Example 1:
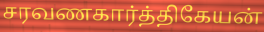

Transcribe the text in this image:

சரவணகார்த்திகேயன்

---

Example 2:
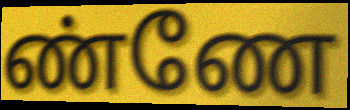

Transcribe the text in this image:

ண்ணே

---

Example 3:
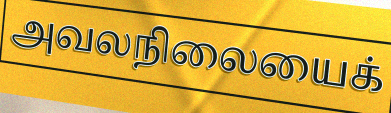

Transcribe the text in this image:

அவலநிலையைக்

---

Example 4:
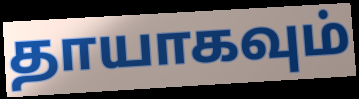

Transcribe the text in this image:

தாயாகவும்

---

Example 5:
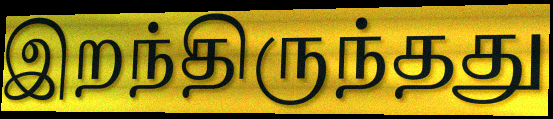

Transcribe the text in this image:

இறந்திருந்தது